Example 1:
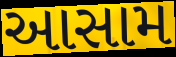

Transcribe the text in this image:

આસામ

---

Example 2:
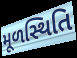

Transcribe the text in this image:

મૂળસ્થિતિ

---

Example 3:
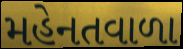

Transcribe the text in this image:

મહેનતવાળા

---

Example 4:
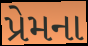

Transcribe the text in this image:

પ્રેમના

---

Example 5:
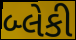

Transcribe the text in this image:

બ્લેકી